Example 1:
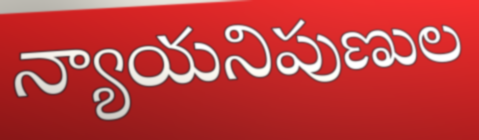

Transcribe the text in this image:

న్యాయనిపుణుల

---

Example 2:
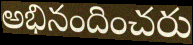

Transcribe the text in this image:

అభినందించరు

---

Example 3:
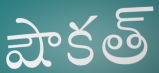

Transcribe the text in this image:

షౌకత్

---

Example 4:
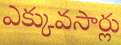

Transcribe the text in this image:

ఎక్కువసార్లు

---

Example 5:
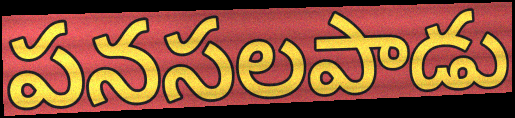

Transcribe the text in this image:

పనసలపాడు